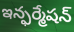
ఇన్ఫర్మేషన్